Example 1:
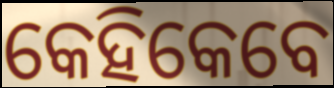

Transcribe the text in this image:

କେହିକେବେ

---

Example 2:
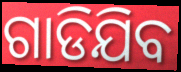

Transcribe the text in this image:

ଗାଡିଯିବ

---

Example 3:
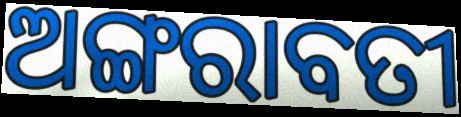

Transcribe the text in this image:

ଅଙ୍ଗରାବତୀ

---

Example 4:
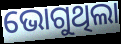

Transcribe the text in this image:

ଭୋଗୁଥିଲା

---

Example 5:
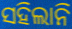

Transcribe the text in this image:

ସହିଲାନି